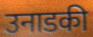
उनाडकी